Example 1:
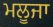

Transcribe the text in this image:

ਮਲੂਜਾ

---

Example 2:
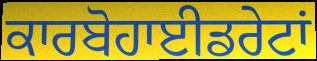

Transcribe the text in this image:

ਕਾਰਬੋਹਾਈਡਰੇਟਾਂ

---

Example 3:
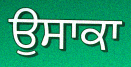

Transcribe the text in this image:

ਉਸਾਕਾ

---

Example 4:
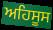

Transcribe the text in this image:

ਅਹਿਸੂਸ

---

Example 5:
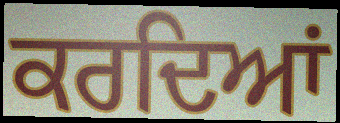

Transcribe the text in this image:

ਕਰਦਿਆਂ